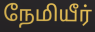
நேமியீர்